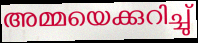
അമ്മയെക്കുറിച്ചു്